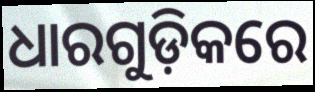
ଧାରଗୁଡ଼ିକରେ